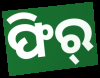
ଫିର୍